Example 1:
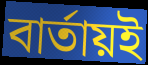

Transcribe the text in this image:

বার্তায়ই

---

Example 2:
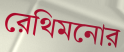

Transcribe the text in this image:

রেথিমনোর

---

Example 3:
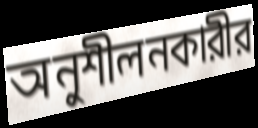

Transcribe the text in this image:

অনুশীলনকারীর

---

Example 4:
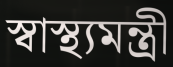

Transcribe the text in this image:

স্বাস্থ্যমন্ত্রী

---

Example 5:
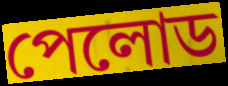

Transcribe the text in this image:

পেলোড